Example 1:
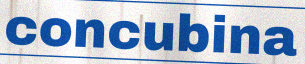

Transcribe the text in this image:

concubina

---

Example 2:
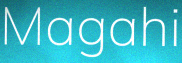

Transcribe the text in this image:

Magahi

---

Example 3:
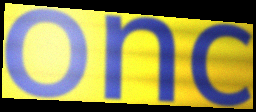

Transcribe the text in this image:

onc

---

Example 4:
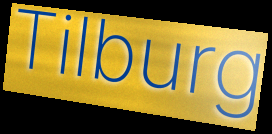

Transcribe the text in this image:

Tilburg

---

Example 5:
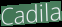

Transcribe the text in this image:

Cadila